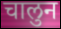
चालुन